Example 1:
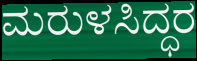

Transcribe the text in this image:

ಮರುಳಸಿದ್ಧರ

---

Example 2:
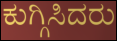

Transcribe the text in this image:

ಕುಗ್ಗಿಸಿದರು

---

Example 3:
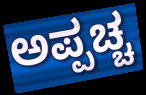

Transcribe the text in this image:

ಅಪ್ಪಚ್ಚ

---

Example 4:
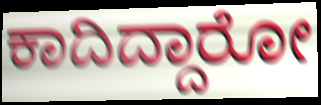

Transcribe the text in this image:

ಕಾದಿದ್ದಾರೋ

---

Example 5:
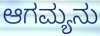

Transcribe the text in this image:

ಆಗಮ್ಯನು